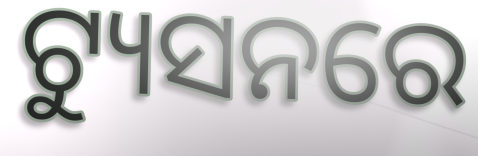
ଟ୍ୟୁସନରେ